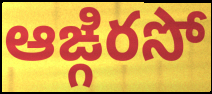
ఆఙ్గిరసో